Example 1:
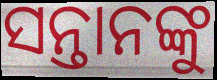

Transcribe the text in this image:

ସନ୍ତାନଙ୍କୁ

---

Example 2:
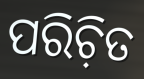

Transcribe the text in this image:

ପରିଚ଼ିତ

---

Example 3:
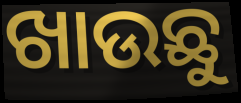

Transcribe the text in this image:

ଖାଉଛୁ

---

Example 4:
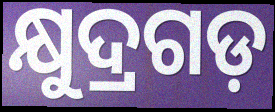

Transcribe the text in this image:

କ୍ଷୁଦ୍ରଗଡ଼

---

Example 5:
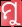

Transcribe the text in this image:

ମୁ